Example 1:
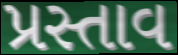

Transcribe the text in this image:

પ્રસ્તાવ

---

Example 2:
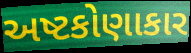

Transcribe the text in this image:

અષ્ટકોણાકાર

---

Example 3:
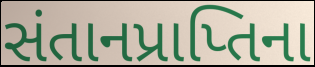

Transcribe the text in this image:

સંતાનપ્રાપ્તિના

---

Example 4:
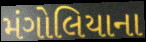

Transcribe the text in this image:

મંગોલિયાના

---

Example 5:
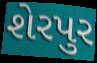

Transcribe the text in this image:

શેરપુર